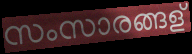
സംസാരങ്ങള്